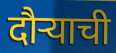
दौर्‍याची